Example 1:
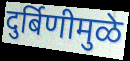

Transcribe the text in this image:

दुर्बिणीमुळे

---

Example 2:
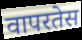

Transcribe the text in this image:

वापरतेस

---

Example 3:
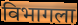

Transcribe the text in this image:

विभागला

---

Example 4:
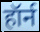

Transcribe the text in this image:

हॉर्न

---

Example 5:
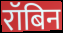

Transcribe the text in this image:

रॉबिन